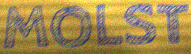
MOLST